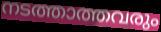
നടത്താത്തവരും